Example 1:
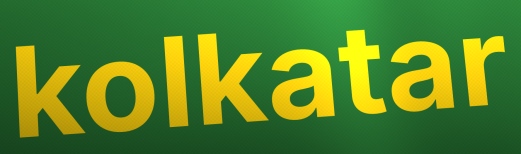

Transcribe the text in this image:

kolkatar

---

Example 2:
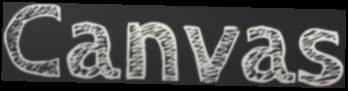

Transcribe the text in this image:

Canvas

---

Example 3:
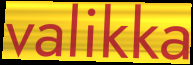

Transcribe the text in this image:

valikka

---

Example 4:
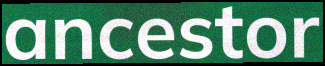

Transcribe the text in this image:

ancestor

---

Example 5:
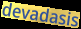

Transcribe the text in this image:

devadasis